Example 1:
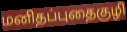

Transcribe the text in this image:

மனிதப்புதைகுழி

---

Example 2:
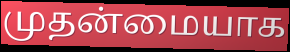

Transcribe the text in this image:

முதன்மையாக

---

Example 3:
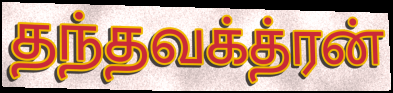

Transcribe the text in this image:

தந்தவக்த்ரன்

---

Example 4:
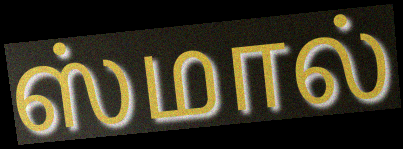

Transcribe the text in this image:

ஸ்மால்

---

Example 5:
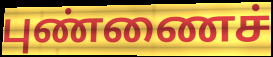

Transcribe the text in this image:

புண்ணைச்